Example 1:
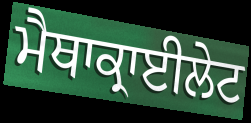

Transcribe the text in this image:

ਮੈਥਾਕ੍ਰਾਈਲੇਟ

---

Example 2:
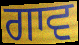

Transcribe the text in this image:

ਗਾਵ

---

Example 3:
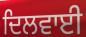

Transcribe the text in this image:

ਦਿਲਵਾਈ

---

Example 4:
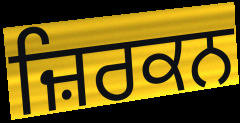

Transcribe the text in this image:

ਜ਼ਿਰਕਨ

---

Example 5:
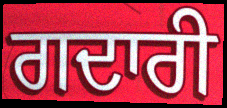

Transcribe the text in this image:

ਗਦਾਰੀ